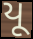
યૂ